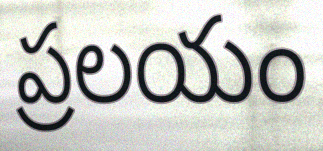
ప్రలయం